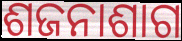
ଶଜନାଶାଗ